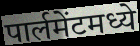
पार्लमेंटमध्ये